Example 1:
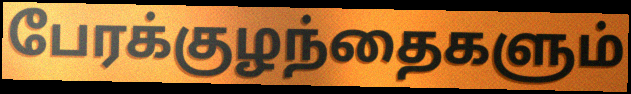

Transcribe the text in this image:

பேரக்குழந்தைகளும்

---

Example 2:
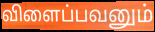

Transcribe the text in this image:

விளைப்பவனும்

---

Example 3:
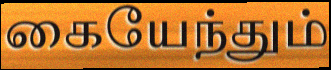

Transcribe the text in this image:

கையேந்தும்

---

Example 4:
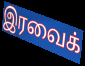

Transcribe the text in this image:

இரவைக்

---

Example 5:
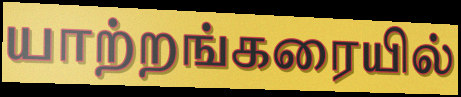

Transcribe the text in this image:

யாற்றங்கரையில்